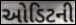
ઓડિટની